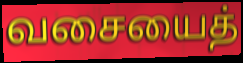
வசையைத்